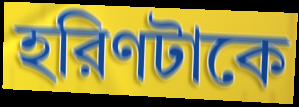
হরিণটাকে